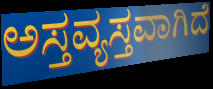
ಅಸ್ತವ್ಯಸ್ತವಾಗಿದೆ